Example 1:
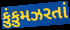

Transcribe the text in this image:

કુંકુમઝરતાં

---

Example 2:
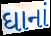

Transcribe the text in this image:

ઘાનાં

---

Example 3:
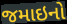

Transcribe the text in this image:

જમાઇનો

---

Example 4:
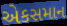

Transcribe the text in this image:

એકસમાન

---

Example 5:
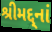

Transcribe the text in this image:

શ્રીમદ્દ્નાં